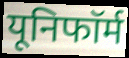
यूनिफॉर्म